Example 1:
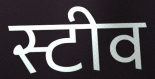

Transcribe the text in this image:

स्टीव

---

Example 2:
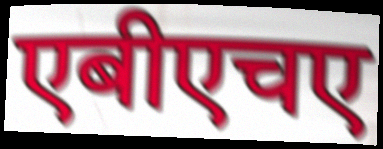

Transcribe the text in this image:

एबीएचए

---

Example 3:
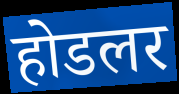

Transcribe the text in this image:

होडलर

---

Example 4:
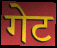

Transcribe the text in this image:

गेट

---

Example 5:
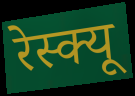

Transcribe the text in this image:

रेस्क्यू